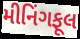
મીનિંગફૂલ